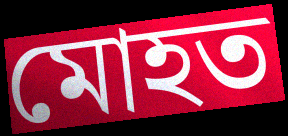
মোহত